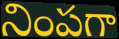
నింపగా